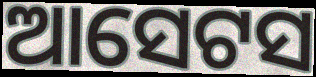
ଆସେଟସ